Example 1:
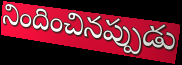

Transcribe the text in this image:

నిందించినప్పుడు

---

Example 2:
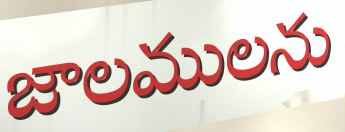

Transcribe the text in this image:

జాలములను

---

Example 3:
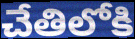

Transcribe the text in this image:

చేతిలోకి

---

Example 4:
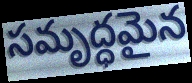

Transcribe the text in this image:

సమృద్ధమైన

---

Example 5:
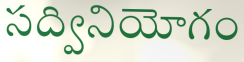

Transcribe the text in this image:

సద్వినియోగం